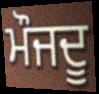
ਮੌਜਦੂ